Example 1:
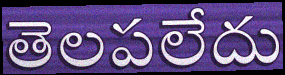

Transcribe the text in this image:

తెలపలేదు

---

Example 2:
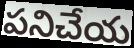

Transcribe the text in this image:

పనిచేయ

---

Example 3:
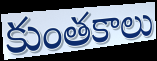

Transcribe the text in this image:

కుంతకాలు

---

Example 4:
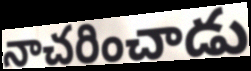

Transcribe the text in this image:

నాచరించాడు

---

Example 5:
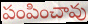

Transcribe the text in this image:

పంపించావు